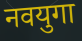
नवयुगा